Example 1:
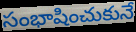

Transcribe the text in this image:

సంభాషించుకునే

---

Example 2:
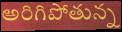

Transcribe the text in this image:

అరిగిపోతున్న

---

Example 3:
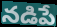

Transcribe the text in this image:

నడిపే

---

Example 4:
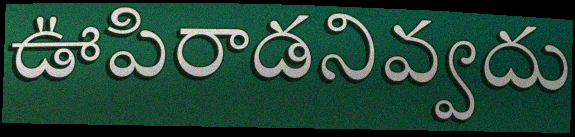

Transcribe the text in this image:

ఊపిరాడనివ్వదు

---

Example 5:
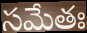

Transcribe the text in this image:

సమేతః